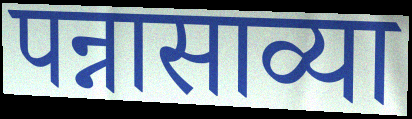
पन्नासाव्या